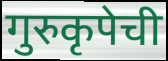
गुरुकृपेची